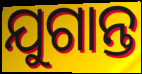
ଯୁଗାନ୍ତ